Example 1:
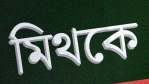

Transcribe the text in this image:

মিথকে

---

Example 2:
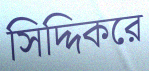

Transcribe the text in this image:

সিদ্দিকরে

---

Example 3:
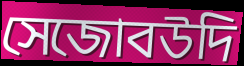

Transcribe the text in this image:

সেজোবউদি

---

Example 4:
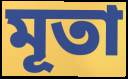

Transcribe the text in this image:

মূতা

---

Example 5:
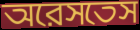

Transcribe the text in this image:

অরেসতেস